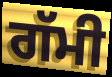
ਗੱਮੀ